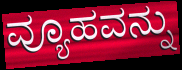
ವ್ಯೂಹವನ್ನು